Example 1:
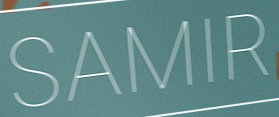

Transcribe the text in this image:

SAMIR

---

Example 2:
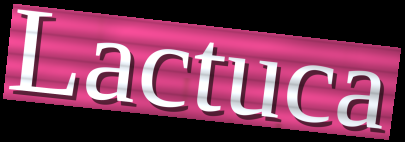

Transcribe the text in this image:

Lactuca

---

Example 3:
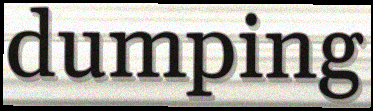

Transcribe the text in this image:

dumping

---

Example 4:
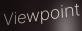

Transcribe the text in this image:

Viewpoint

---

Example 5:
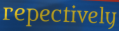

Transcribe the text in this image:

repectively